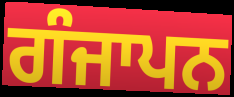
ਗੰਜਾਪਨ